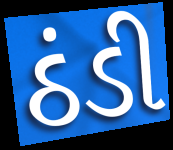
ઠંડી